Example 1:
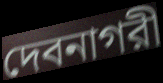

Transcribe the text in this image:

দেবনাগরী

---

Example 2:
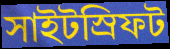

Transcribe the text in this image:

সাইটস্রিফট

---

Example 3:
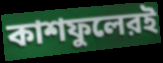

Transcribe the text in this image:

কাশফুলেরই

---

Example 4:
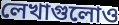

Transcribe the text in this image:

লেখাগুলোও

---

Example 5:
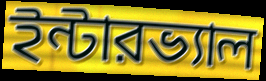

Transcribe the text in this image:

ইন্টারভ্যাল